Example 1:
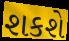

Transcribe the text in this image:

શકશે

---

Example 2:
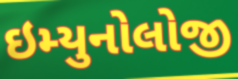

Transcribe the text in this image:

ઇમ્યુનોલોજી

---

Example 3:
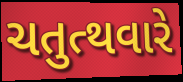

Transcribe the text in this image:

ચતુત્થવારે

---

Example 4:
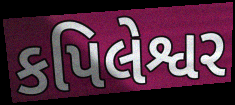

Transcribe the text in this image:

કપિલેશ્વર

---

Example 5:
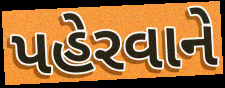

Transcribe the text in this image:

પહેરવાને